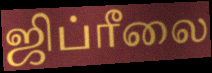
ஜிப்ரீலை